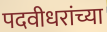
पदवीधरांच्या